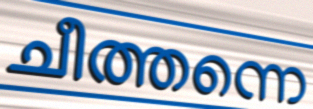
ചീത്തന്നെ